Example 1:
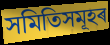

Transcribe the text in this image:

সমিতিসমূহৰ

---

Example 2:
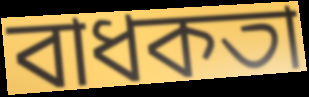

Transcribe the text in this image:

বাধকতা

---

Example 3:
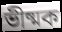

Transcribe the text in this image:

ভীষ্মক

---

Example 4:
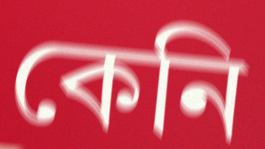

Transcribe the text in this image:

কেনি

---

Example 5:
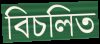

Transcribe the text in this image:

বিচলিত